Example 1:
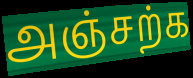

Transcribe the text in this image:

அஞ்சற்க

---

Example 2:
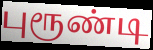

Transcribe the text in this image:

புரூண்டி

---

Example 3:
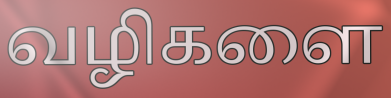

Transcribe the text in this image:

வழிகளை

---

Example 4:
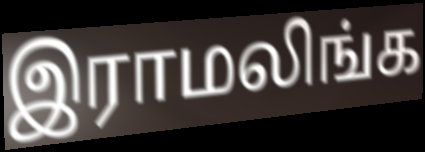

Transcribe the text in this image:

இராமலிங்க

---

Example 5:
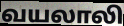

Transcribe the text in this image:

வயலாலி